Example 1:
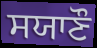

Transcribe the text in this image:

ਸਯਾਣੌ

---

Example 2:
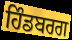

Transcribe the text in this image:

ਹਿੰਡਬਰਗ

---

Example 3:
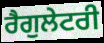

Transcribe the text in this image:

ਰੈਗੁਲੇਟਰੀ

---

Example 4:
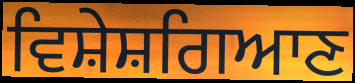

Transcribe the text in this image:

ਵਿਸ਼ੇਸ਼ਗਿਆਣ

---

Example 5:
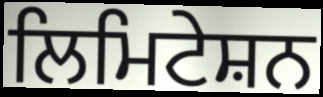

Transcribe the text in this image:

ਲਿਮਿਟੇਸ਼ਨ